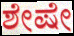
ಶೇಷೇ